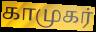
காமுகர்